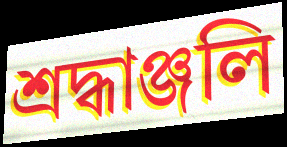
শ্ৰদ্ধাঞ্জলি